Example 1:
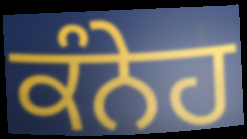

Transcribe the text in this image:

ਕੰਨੇਹ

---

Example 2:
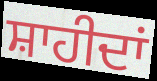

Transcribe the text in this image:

ਸ਼ਾਹੀਦਾਂ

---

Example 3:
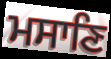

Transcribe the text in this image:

ਮਸਾਣਿ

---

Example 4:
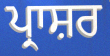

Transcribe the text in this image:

ਪ੍ਰਾਸ਼ਰ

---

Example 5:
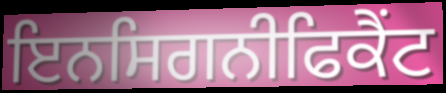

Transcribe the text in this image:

ਇਨਸਿਗਨੀਫਿਕੈਂਟ